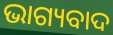
ଭାଗ୍ୟବାଦ